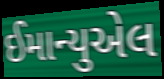
ઈમાન્યુએલ